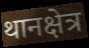
थानक्षेत्र